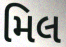
મિલ